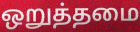
ஒறுத்தமை